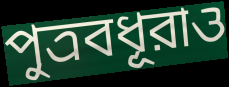
পুত্রবধূরাও